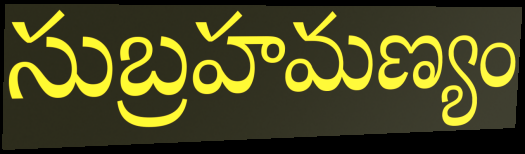
సుబ్రహమణ్యం